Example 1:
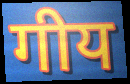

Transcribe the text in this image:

गीय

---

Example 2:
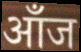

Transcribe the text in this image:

आँज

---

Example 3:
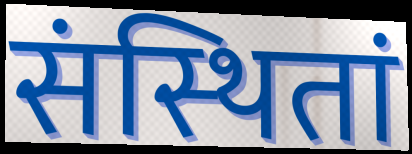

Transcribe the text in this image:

संस्थितां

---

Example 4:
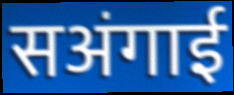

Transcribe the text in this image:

सअंगाई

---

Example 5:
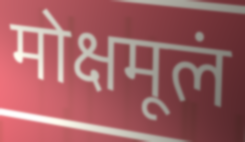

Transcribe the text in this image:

मोक्षमूलं